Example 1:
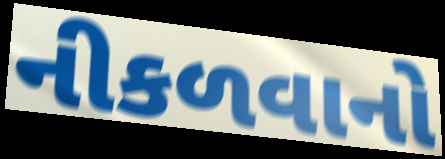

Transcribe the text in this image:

નીકળવાનો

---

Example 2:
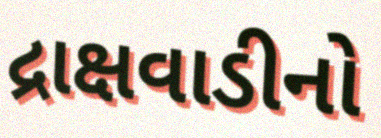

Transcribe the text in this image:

દ્રાક્ષવાડીનો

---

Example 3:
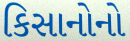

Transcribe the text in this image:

કિસાનોનો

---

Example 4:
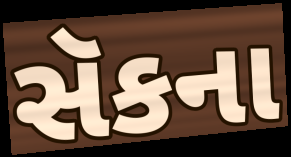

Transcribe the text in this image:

સૅકના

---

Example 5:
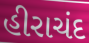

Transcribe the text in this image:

હીરાચંદ